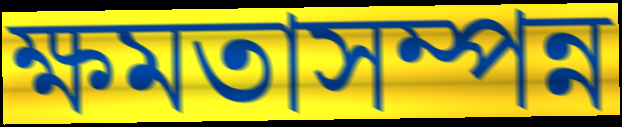
ক্ষমতাসম্পন্ন